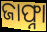
ଜାଫ୍ନା